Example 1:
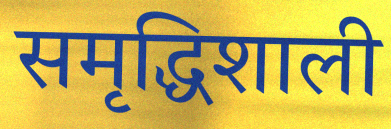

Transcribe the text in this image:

समृद्धिशाली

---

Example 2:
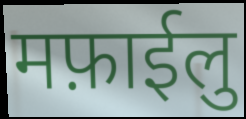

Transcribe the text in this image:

मफ़ाईलु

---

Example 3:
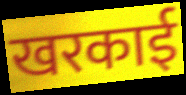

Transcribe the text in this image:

खरकाई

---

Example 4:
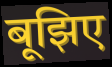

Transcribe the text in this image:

बूझिए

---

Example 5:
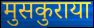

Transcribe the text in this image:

मुसकुराया